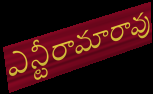
ఎన్టీరామారావు